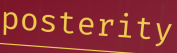
posterity